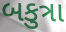
બકુત્રા